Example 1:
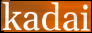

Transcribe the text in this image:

kadai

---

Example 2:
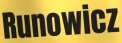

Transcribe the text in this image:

Runowicz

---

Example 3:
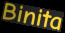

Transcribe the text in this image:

Binita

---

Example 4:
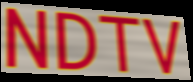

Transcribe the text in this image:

NDTV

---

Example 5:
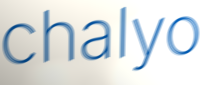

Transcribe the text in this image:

chalyo